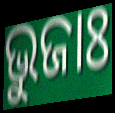
ଭୁଜାଃ